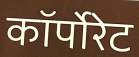
कॉर्पोरेट